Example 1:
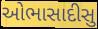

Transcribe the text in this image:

ઓભાસાદીસુ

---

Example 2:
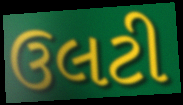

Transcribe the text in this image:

ઉલટી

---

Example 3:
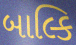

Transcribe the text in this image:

બાલ્કિ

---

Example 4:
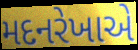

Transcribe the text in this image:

મદનરેખાએ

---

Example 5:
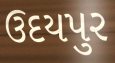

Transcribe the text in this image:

ઉદયપુર